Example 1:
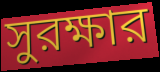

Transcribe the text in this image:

সুরক্ষার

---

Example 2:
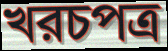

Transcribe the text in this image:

খরচপত্র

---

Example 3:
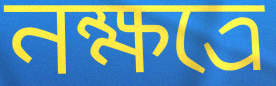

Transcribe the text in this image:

নক্ষত্রে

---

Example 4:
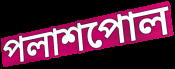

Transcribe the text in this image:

পলাশপোল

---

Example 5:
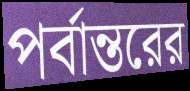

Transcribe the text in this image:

পর্বান্তরের